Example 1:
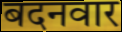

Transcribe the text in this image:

बदनवार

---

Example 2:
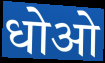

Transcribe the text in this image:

धोओ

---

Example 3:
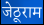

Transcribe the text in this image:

जेठूराम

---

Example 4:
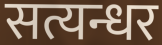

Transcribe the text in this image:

सत्यन्धर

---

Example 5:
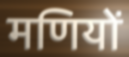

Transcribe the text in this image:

मणियों